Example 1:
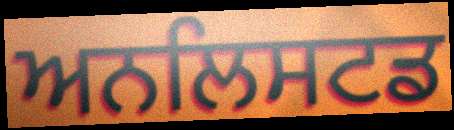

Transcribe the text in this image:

ਅਨਲਿਸਟਡ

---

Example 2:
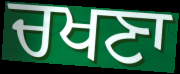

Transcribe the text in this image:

ਚਖਣਾ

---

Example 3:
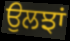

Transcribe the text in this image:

ਉਲਝਾਂ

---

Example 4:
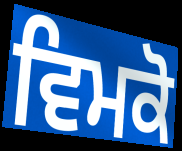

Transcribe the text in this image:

ਵਿਮਕੋ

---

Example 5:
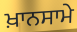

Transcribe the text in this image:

ਖ਼ਾਨਸਾਮੇ